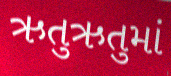
ઋતુઋતુમાં